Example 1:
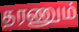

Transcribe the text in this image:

தரணும்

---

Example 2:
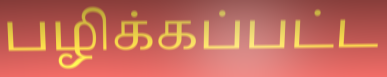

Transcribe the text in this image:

பழிக்கப்பட்ட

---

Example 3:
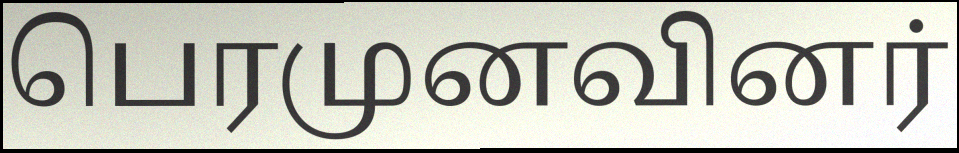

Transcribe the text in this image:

பெரமுனவினர்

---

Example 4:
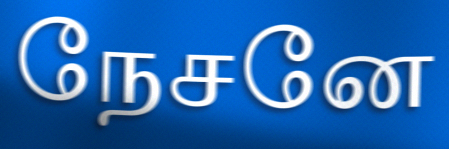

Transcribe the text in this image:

நேசனே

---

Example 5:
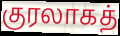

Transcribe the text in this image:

குரலாகத்